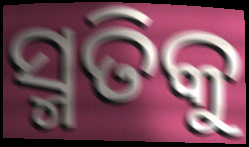
ସ୍ମତିକୁ